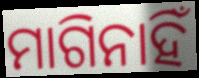
ମାଗିନାହିଁ